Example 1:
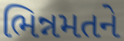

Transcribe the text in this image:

ભિન્નમતને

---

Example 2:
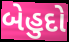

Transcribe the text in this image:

બેહુદો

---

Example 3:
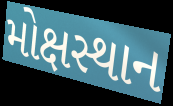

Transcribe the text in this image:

મોક્ષસ્થાન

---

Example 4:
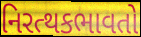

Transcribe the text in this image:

નિરત્થકભાવતો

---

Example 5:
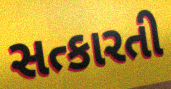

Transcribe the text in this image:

સત્કારતી